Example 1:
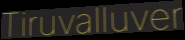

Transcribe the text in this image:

Tiruvalluver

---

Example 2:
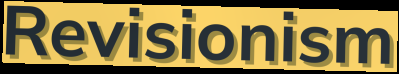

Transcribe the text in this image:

Revisionism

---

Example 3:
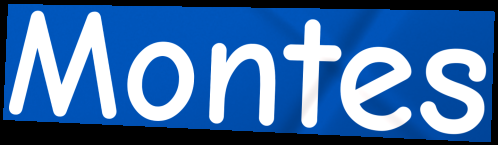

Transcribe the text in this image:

Montes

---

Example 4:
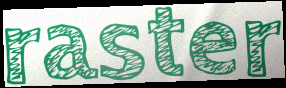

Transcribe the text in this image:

raster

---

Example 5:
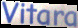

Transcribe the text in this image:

Vitara